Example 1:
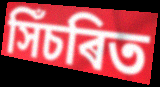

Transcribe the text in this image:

সিঁচৰিত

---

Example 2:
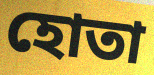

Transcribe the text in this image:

হোতা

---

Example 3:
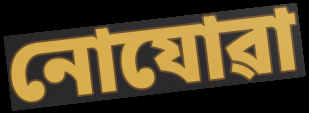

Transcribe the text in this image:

নোযোৱা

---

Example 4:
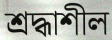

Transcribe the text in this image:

শ্ৰদ্ধাশীল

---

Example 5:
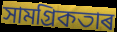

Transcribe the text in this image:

সামগ্ৰিকতাৰ